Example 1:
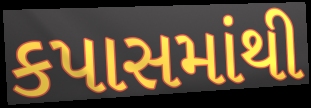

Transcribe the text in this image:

કપાસમાંથી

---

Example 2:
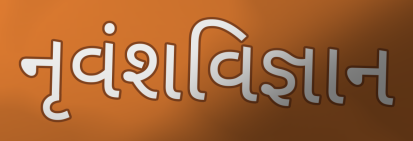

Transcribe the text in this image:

નૃવંશવિજ્ઞાન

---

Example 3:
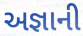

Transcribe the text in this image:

અજ્ઞાની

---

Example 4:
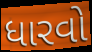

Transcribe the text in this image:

ધારવો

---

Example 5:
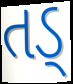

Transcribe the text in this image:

તડ્